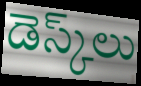
డెస్క్‌లు